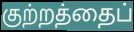
குற்றத்தைப்